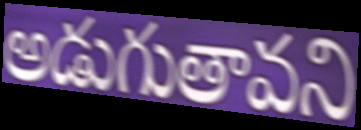
అడుగుతావని